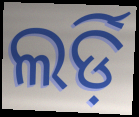
ଲର୍ଡ଼ି